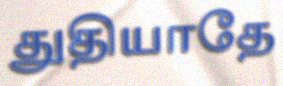
துதியாதே